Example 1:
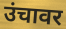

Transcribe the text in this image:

उंचावर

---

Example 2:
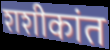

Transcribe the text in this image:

शशीकांत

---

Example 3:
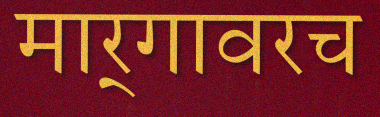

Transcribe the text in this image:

मार्गावरच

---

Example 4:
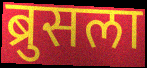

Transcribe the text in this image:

ब्रुसला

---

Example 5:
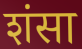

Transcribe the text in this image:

शंसा